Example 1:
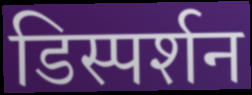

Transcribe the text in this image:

डिस्पर्शन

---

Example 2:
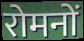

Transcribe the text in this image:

रोमनों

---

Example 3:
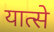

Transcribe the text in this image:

यात्से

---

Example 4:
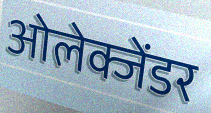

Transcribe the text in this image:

ओलेक्जेंडर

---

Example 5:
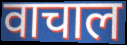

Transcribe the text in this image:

वाचाल